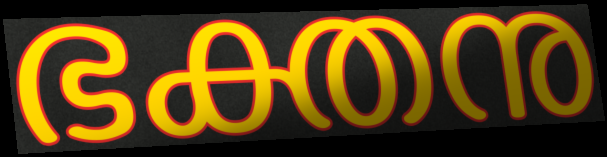
ഭക്തനു